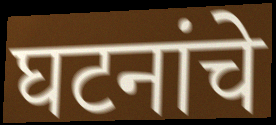
घटनांचे